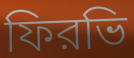
ফিরভি